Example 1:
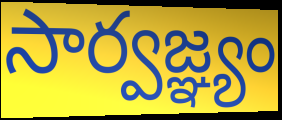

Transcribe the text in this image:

సార్వజ్ఞ్యం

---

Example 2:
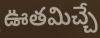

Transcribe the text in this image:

ఊతమిచ్చే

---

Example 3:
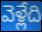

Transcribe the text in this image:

వెళ్లేది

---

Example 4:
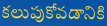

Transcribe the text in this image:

కలుపుకోవడానికి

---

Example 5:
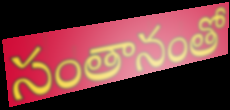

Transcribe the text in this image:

సంతానంతో